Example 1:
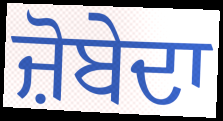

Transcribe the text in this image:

ਜ਼ੋਬੇਦਾ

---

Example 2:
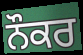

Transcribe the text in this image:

ਨੌਕਰ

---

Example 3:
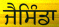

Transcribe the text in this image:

ਜੈਸਿੰਡਾ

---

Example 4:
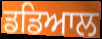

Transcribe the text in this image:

ਡਡਿਆਲ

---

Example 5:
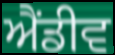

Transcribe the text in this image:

ਐਂਡੀਵ